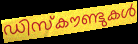
ഡിസ്കൗണ്ടുകൾ